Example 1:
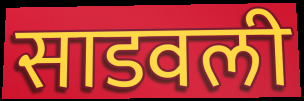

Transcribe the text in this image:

साडवली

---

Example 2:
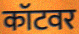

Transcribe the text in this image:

कॉटवर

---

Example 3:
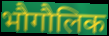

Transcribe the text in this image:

भौगौलिक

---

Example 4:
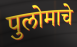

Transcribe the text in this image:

पुलोमाचे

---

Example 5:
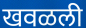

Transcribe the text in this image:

खवळली